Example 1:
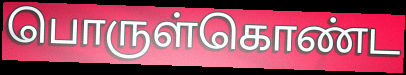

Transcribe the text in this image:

பொருள்கொண்ட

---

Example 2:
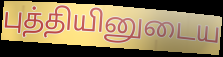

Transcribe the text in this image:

புத்தியினுடைய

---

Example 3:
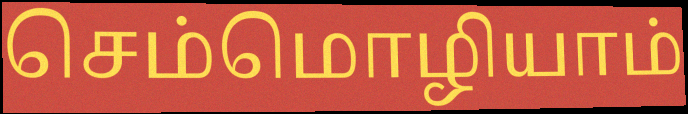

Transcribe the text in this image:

செம்மொழியாம்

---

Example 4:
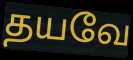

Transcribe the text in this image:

தயவே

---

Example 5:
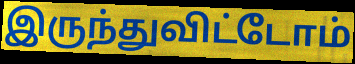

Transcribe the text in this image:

இருந்துவிட்டோம்